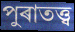
পুৰাতত্ত্ব